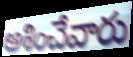
ఆశించేవారు